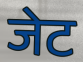
जेट